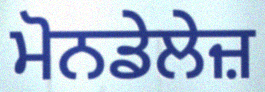
ਮੋਨਡੇਲੇਜ਼